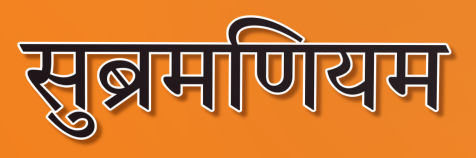
सुब्रमणियम